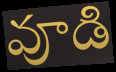
వూడి